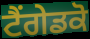
ਟੈਂਗੇਡਕੋ